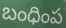
బంధింప